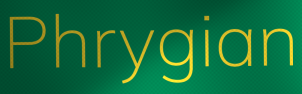
Phrygian